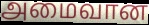
அமைவான